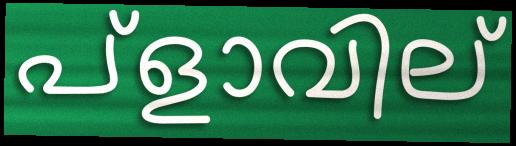
പ്ളാവില്